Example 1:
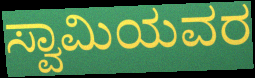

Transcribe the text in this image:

ಸ್ವಾಮಿಯವರ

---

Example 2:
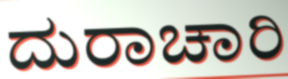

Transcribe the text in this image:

ದುರಾಚಾರಿ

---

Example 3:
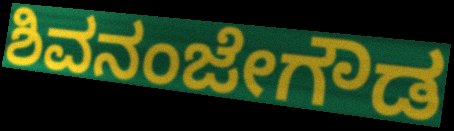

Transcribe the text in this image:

ಶಿವನಂಜೇಗೌಡ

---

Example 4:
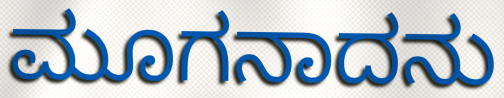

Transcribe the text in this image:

ಮೂಗನಾದನು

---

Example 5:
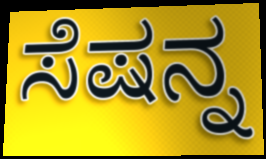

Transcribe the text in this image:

ಸೆಷನ್ನ